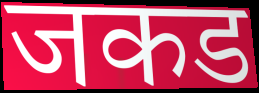
जकड